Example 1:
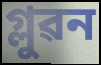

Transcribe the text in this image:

গ্লুৱন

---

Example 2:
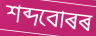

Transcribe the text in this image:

শব্দবোৰৰ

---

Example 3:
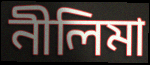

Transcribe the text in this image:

নীলিমা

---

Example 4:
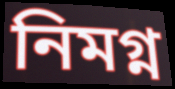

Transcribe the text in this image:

নিমগ্ন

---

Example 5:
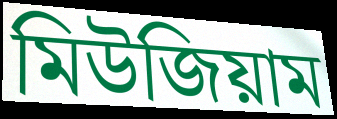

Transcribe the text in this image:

মিউজিয়াম